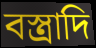
বস্ত্রাদি